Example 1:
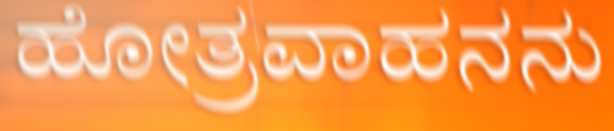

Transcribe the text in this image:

ಹೋತ್ರವಾಹನನು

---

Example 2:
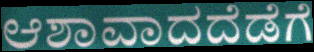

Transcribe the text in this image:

ಆಶಾವಾದದೆಡೆಗೆ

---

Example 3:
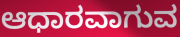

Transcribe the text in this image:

ಆಧಾರವಾಗುವ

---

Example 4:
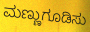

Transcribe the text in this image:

ಮಣ್ಣುಗೂಡಿಸು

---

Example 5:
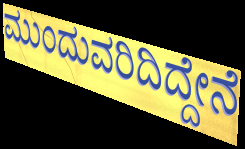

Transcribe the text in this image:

ಮುಂದುವರಿದಿದ್ದೇನೆ